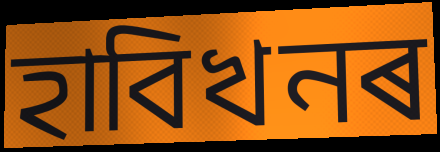
হাবিখনৰ